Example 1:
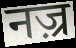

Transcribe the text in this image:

नज़्र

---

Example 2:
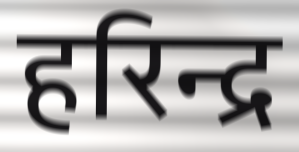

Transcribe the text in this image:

हरिन्द्र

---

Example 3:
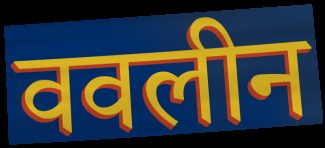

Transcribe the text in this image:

ववलीन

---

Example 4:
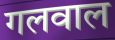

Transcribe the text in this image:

गलवाल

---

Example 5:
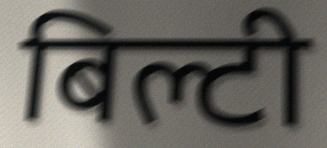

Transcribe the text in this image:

बिल्टी